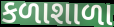
કળાશાળા